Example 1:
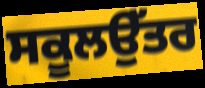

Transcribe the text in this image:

ਸਕੂਲਉੱਤਰ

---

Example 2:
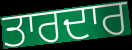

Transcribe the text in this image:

ਤਾਰਦਾਰ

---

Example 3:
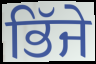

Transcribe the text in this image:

ਭਿੱਜੇ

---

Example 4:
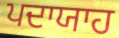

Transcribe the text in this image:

ਪਦਾਯਾਹ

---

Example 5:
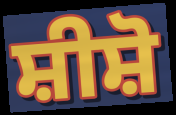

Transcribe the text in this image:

ਸ਼ੀਸ਼ੋ